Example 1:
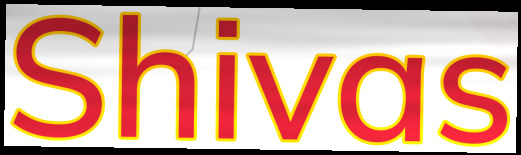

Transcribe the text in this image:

Shivas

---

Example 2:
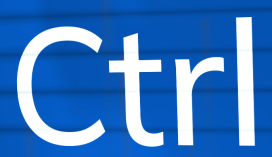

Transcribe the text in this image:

Ctrl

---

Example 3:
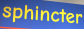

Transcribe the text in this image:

sphincter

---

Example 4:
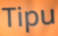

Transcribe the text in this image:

Tipu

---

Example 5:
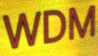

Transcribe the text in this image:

WDM